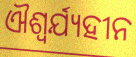
ଐଶ୍ଵର୍ଯ୍ୟହୀନ